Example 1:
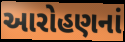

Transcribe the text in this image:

આરોહણનાં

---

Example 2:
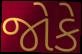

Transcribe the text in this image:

જોકે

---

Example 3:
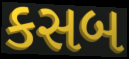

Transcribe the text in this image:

કસબ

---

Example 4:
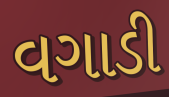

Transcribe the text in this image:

વગાડી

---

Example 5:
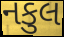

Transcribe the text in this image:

નકુલ